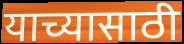
याच्यासाठी